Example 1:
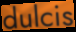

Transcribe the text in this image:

dulcis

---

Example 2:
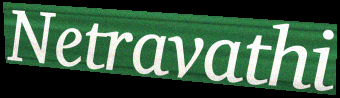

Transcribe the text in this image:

Netravathi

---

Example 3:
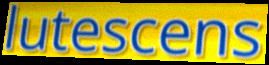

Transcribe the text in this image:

lutescens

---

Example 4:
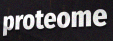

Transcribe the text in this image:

proteome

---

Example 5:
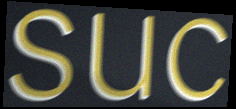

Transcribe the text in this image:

suc